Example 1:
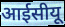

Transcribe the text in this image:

आईसीयू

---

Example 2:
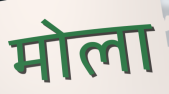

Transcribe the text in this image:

मोला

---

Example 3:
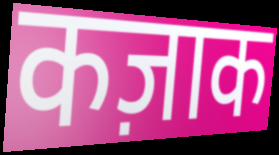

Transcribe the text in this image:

कज़ाक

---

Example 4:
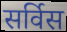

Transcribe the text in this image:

सर्विस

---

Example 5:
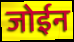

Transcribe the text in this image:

जोईन